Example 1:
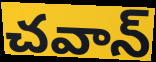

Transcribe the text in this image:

చవాన్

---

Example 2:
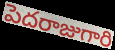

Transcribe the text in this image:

పెదరాజుగారి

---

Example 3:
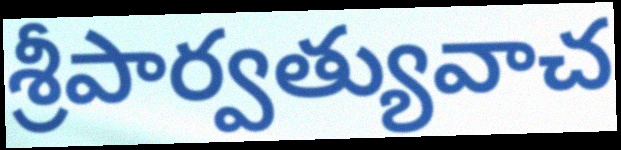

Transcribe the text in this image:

శ్రీపార్వత్యువాచ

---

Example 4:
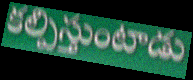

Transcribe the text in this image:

కల్పిస్తుంటాడు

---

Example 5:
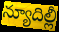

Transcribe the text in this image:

న్యూదిల్లీ